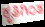
ಕೃತಿಗಿಂತ